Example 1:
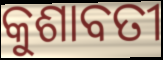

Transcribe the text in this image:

କୁଶାବତୀ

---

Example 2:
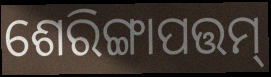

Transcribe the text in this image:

ଶେରିଙ୍ଗାପତ୍ତମ୍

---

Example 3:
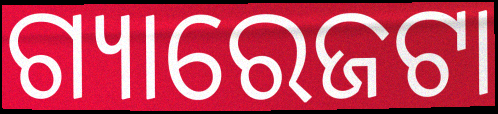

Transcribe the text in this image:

ଗ୍ୟାରେଜଟା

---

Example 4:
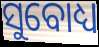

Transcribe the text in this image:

ସୁବୋଧ୍ୟ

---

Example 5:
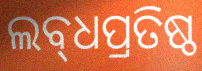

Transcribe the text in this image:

ଲବ୍‌ଧପ୍ରତିଷ୍ଠ